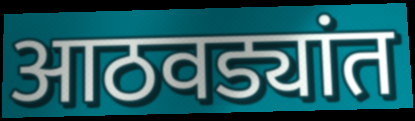
आठवड्यांत